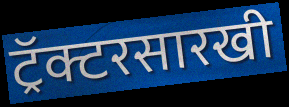
ट्रॅक्टरसारखी